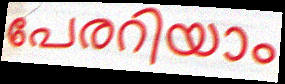
പേരറിയാം